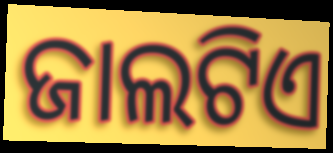
ଜାଲଟିଏ